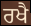
ਰਖੈ